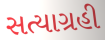
સત્યાગ્રહી